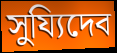
সুয্যিদেব